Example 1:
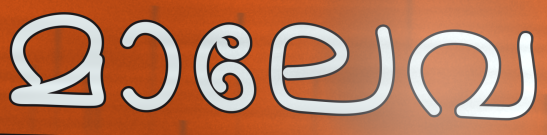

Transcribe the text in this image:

മാലേവ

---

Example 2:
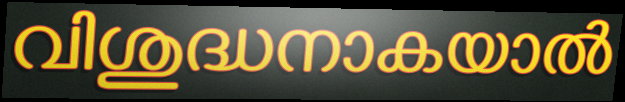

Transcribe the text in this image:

വിശുദ്ധനാകയാൽ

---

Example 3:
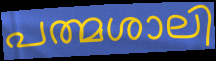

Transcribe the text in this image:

പത്മശാലി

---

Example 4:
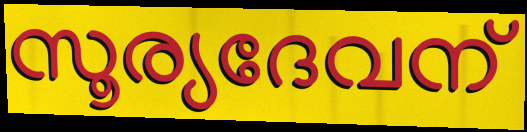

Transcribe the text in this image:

സൂര്യദേവന്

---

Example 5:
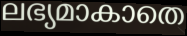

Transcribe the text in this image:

ലഭ്യമാകാതെ